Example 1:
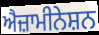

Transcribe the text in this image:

ਐਜ਼ਾਮੀਨੇਸ਼ਨ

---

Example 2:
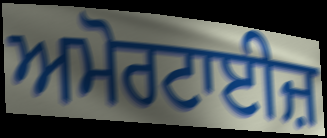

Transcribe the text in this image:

ਅਮੋਰਟਾਈਜ਼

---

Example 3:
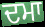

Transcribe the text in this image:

ਦਮਾ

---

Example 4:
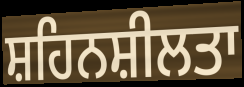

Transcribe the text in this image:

ਸ਼ਹਿਨਸ਼ੀਲਤਾ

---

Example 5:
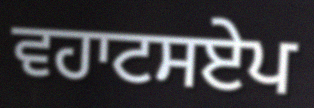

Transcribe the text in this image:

ਵਹਾਟਸਏਪ